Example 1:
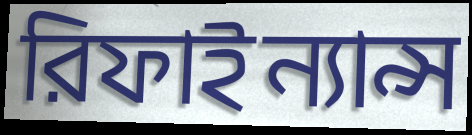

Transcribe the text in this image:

রিফাইন্যান্স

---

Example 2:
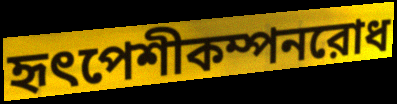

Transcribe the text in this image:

হৃৎপেশীকম্পনরোধ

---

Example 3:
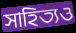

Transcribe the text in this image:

সাহিত্যও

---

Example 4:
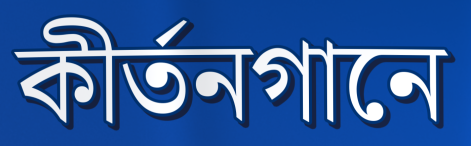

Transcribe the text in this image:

কীর্তনগানে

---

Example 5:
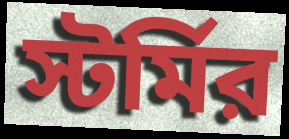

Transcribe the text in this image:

স্টর্মির